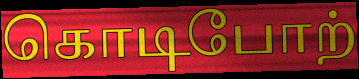
கொடிபோற்